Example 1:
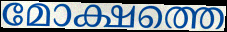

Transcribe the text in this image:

മോക്ഷത്തെ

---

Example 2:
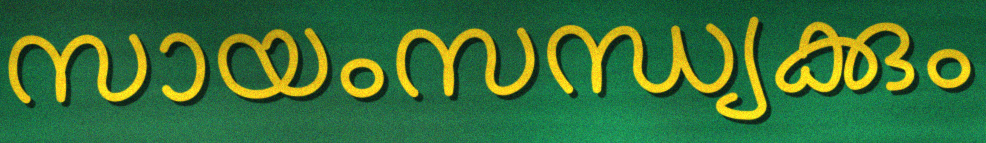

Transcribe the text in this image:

സായംസന്ധ്യക്കും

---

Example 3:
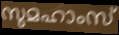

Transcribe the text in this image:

സുമഹാംസ്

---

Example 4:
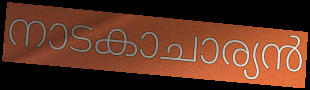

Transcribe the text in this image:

നാടകാചാര്യൻ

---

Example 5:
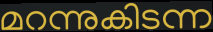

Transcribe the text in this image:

മറന്നുകിടന്ന